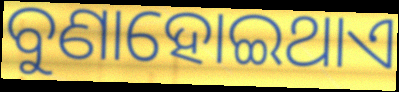
ବୁଣାହୋଇଥାଏ